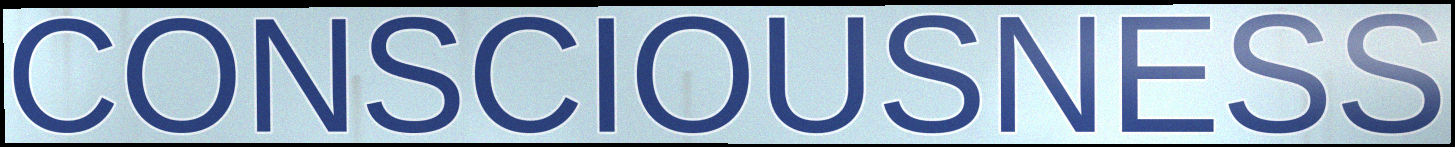
CONSCIOUSNESS